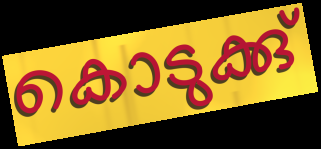
കൊടുക്കു്